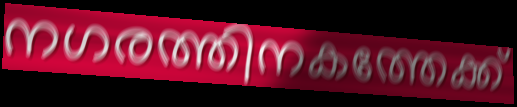
നഗരത്തിനകത്തേക്ക്